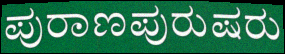
ಪುರಾಣಪುರುಷರು